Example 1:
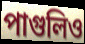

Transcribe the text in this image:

পাগুলিও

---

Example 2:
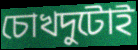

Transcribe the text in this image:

চোখদুটোই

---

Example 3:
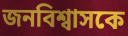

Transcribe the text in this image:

জনবিশ্বাসকে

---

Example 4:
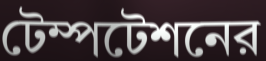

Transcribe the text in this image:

টেম্পটেশনের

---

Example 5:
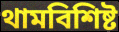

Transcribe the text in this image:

থামবিশিষ্ট